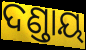
ଦଣ୍ଡାୟ